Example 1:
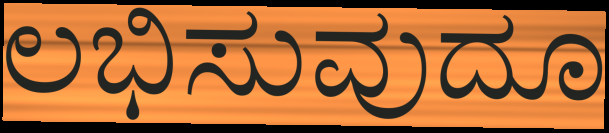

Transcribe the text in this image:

ಲಭಿಸುವುದೂ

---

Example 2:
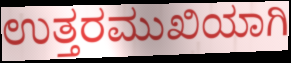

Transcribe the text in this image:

ಉತ್ತರಮುಖಿಯಾಗಿ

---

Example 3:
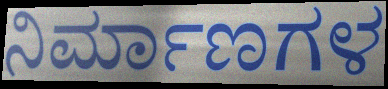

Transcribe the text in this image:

ನಿರ್ಮಾಣಗಳ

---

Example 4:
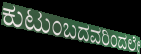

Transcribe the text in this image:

ಕುಟುಂಬದವರಿಂದಲೇ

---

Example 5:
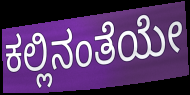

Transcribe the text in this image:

ಕಲ್ಲಿನಂತೆಯೇ